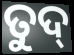
ତୁଦ୍